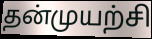
தன்முயற்சி